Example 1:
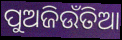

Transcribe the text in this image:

ପୁଅଜିଉଁତିଆ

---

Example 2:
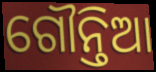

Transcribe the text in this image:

ଗୌନ୍ତିଆ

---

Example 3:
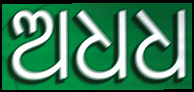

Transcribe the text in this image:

ଅଧଧ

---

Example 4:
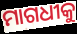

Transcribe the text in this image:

ମାଗଧୀକୁ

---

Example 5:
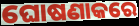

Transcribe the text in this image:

ଘୋଷଣାକରେ